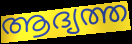
ആദ്യത്ത